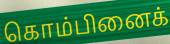
கொம்பினைக்